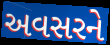
અવસરને